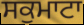
ਸਕੁਮਾਟਾ